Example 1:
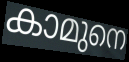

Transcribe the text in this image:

കാമുനെ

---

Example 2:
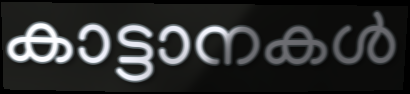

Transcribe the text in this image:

കാട്ടാനകൾ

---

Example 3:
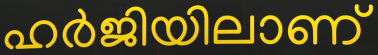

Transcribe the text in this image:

ഹർജിയിലാണ്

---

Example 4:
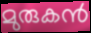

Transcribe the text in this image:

മുരുകൻ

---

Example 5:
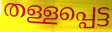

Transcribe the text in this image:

തള്ളപ്പെട്ട